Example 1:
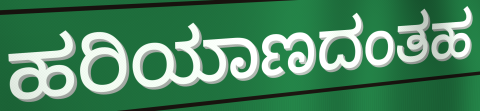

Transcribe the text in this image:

ಹರಿಯಾಣದಂತಹ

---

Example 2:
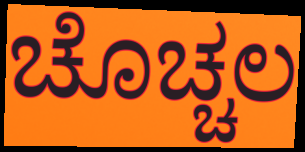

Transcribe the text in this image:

ಚೊಚ್ಚಲ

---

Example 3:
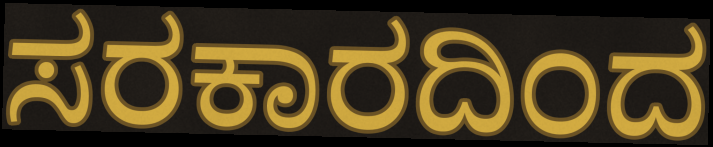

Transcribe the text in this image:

ಸರಕಾರದಿಂದ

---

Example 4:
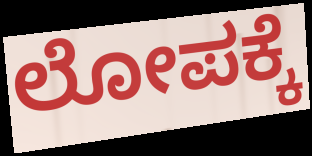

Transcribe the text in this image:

ಲೋಪಕ್ಕೆ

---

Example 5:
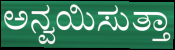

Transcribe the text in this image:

ಅನ್ವಯಿಸುತ್ತಾ